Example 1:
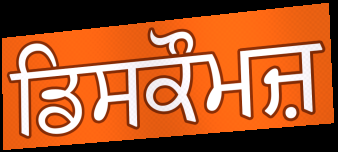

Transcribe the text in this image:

ਡਿਸਕੌਮਜ਼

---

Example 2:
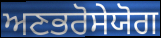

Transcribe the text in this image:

ਅਣਭਰੋਸੇਯੋਗ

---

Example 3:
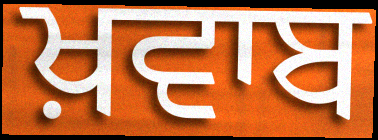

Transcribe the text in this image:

ਖ਼ਵਾਬ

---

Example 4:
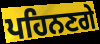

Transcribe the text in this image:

ਪਹਿਨਣਗੇ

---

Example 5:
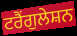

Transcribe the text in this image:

ਟਰੈਂਗੁਲੇਸ਼ਨ